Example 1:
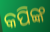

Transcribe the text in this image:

କପିଙ୍କ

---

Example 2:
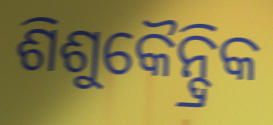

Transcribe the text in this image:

ଶିଶୁକୈନ୍ଦ୍ରିକ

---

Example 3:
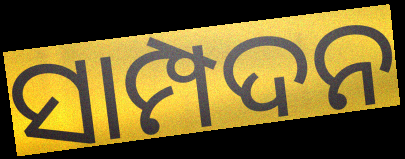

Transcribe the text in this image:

ସାମ୍ପଦନ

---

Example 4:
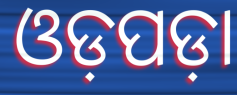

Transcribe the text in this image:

ଓଡ଼ପଡ଼ା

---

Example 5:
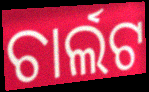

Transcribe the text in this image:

ଚାର୍ଲଟ